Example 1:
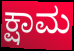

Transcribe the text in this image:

ಕ್ಷಾಮ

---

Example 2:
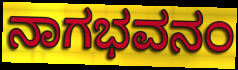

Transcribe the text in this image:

ನಾಗಭವನಂ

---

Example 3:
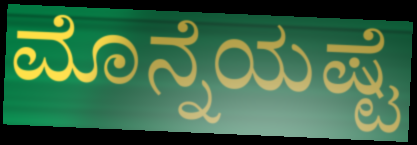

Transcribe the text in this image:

ಮೊನ್ನೆಯಷ್ಟೆ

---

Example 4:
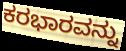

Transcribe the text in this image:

ಕರಭಾರವನ್ನು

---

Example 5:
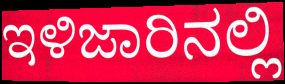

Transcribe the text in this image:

ಇಳಿಜಾರಿನಲ್ಲಿ